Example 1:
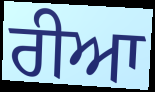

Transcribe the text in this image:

ਰੀਆ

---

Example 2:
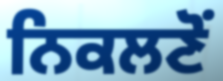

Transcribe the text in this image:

ਨਿਕਲਣੋਂ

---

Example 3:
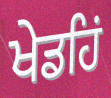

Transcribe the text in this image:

ਖੇਡਹਿਂ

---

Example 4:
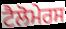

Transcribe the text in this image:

ਟੈਲੋਮੇਰਸ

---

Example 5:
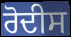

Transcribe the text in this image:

ਰੋਦੀਸ